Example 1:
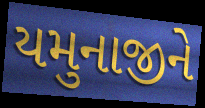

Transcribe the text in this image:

યમુનાજીને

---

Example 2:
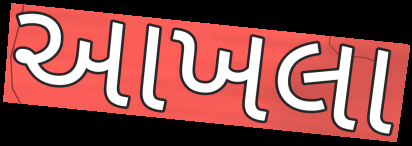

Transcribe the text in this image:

આખલા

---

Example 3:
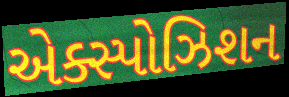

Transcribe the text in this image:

એક્સ્પોઝિશન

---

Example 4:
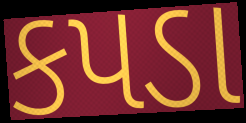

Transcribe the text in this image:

કપડા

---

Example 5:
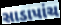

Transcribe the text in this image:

સાડાપાંચ